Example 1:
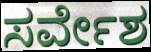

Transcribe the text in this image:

ಸರ್ವೇಶ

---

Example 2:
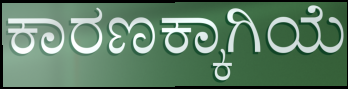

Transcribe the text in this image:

ಕಾರಣಕ್ಕಾಗಿಯೆ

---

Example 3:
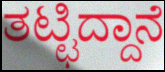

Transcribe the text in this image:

ತಟ್ಟಿದ್ದಾನೆ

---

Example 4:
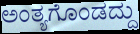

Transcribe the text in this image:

ಅಂತ್ಯಗೊಂಡದ್ದು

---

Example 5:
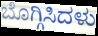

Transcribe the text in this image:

ಬೊಗ್ಗಿಸಿದಳು